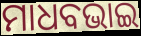
ମାଧବଭାଇ